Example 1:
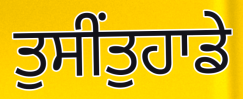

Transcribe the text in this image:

ਤੁਸੀਂਤੁਹਾਡੇ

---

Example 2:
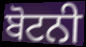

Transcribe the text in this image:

ਬੋਟਨੀ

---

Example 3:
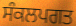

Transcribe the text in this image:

ਸੰਕਲਪਗਤ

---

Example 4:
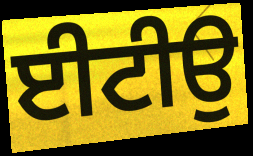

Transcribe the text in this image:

ਈਟੀਉ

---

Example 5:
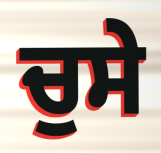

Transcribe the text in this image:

ਚੁਸੇ